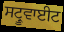
ਸਟ੍ਰੂਵਾਈਟ